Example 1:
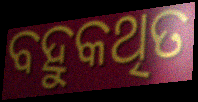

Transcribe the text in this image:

ବହୁକଥିତ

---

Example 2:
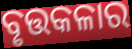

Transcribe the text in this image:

ବୃତ୍ତକଳାର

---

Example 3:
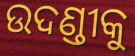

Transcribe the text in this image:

ଉଦଣ୍ଡୀକୁ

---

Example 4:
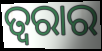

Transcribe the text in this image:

ତ୍ୱରାର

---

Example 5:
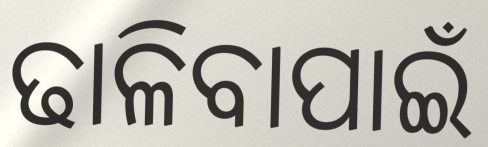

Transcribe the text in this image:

ଢାଳିବାପାଇଁ